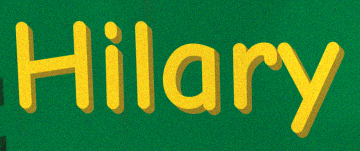
Hilary